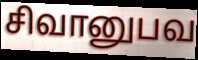
சிவானுபவ